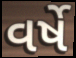
વર્ષે